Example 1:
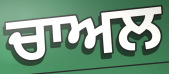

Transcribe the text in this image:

ਚਾਅਲ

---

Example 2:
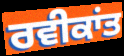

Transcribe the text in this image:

ਰਵੀਕਾਂਤ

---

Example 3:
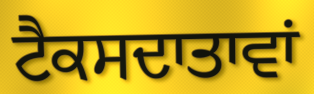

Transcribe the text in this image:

ਟੈਕਸਦਾਤਾਵਾਂ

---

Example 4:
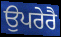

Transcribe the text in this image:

ਉਪਰੇਰੈ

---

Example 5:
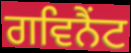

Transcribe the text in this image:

ਗਵਿਨੈਂਟ